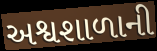
અશ્વશાળાની